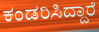
ಕಂಡರಿಸಿದ್ದಾರೆ